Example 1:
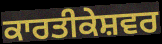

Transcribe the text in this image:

ਕਾਰਤੀਕੇਸ਼ਵਰ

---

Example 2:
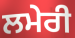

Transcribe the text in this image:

ਲਮੇਰੀ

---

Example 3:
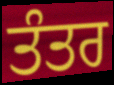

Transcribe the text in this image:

ਤੰਤਰ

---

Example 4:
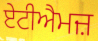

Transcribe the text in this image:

ਏਟੀਐਮਜ਼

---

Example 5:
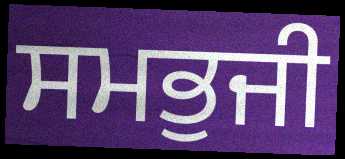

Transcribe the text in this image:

ਸਮਭੁਜੀ